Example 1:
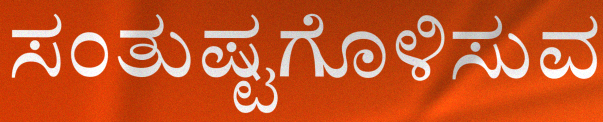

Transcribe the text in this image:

ಸಂತುಷ್ಟಗೊಳಿಸುವ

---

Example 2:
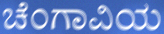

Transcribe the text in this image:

ಚೆಂಗಾವಿಯ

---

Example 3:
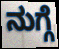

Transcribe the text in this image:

ನುಗ್ಗೆ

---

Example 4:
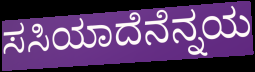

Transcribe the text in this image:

ಸಸಿಯಾದೆನೆನ್ನಯ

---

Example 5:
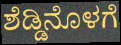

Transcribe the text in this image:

ಶೆಡ್ಡಿನೊಳಗೆ